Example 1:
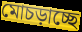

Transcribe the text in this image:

মোচড়াচ্ছে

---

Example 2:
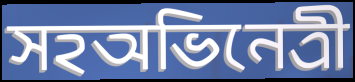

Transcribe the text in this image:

সহঅভিনেত্রী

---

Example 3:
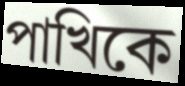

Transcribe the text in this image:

পাখিকে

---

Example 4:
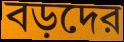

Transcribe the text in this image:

বড়দের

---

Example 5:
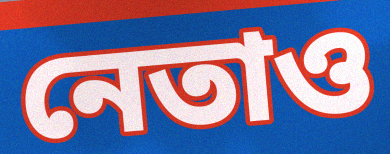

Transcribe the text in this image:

নেতাও